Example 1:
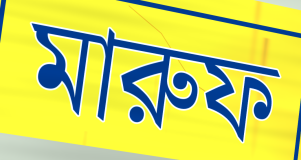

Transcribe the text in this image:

মারুফ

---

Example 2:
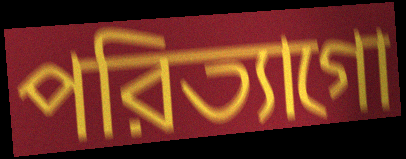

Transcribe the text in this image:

পরিত্যাগো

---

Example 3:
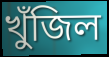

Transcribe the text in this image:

খুঁজিল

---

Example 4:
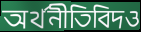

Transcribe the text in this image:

অর্থনীতিবিদও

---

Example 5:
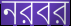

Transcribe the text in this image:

নরবর